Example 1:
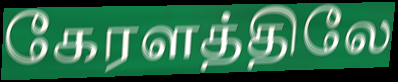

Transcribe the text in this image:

கேரளத்திலே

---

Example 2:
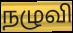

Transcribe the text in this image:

நழுவி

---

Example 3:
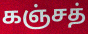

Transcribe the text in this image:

கஞ்சத்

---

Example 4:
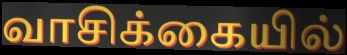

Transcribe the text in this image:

வாசிக்கையில்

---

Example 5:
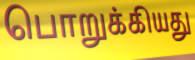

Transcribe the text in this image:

பொறுக்கியது